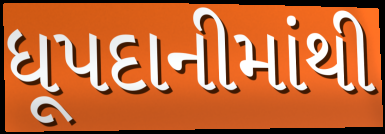
ધૂપદાનીમાંથી